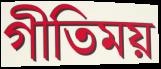
গীতিময়